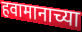
हवामानाच्या